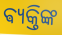
ଵ୍ୟକ୍ତିଙ୍କ